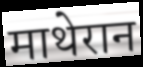
माथेरान